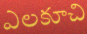
ఎలకూచి